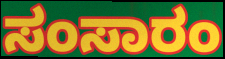
ಸಂಸಾರಂ